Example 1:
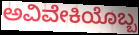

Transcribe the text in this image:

ಅವಿವೇಕಿಯೊಬ್ಬ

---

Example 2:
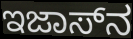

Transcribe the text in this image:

ಇಜಾಸ್‌ನ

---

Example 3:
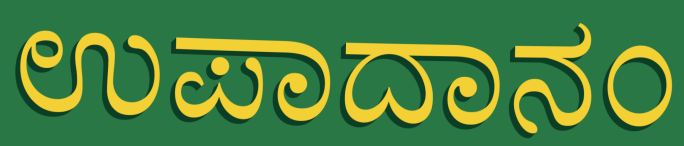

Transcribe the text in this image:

ಉಪಾದಾನಂ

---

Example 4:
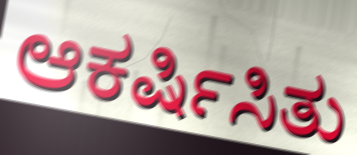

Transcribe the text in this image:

ಆಕರ್ಷಿಸಿತು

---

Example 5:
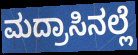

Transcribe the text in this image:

ಮದ್ರಾಸಿನಲ್ಲೆ